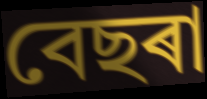
বেছৰা